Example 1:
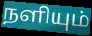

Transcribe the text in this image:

நளியும்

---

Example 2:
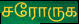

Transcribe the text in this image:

சரோருக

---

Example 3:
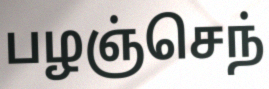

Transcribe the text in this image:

பழஞ்செந்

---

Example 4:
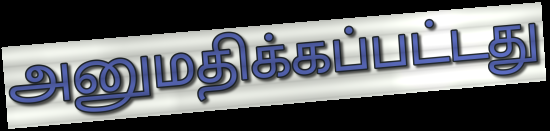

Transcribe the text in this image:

அனுமதிக்கப்பட்டது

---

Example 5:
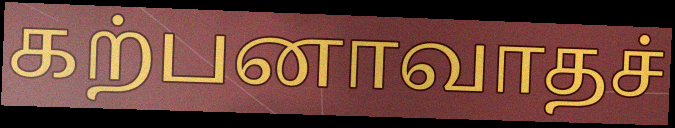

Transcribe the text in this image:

கற்பனாவாதச்